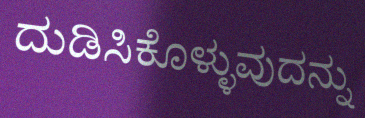
ದುಡಿಸಿಕೊಳ್ಳುವುದನ್ನು